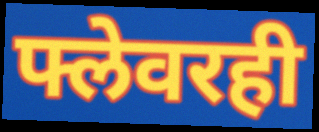
फ्लेवरही